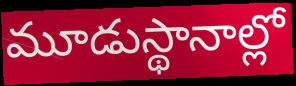
మూడుస్థానాల్లో